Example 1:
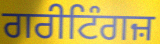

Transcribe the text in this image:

ਗਰੀਟਿੰਗਜ਼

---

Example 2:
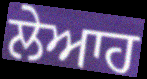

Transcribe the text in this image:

ਲੇਆਹ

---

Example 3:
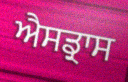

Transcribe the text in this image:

ਐਸਡ੍ਰਾਸ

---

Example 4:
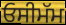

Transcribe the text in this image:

ਓਸੀਮੱਮ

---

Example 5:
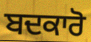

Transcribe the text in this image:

ਬਦਕਾਰੋ